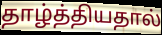
தாழ்த்தியதால்